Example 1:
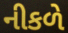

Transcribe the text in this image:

નીકળે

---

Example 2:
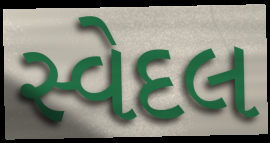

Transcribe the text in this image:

સ્વેદલ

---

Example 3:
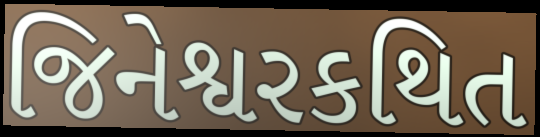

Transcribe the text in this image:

જિનેશ્વરકથિત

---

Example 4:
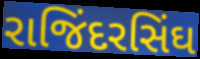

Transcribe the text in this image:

રાજિંદરસિંઘ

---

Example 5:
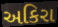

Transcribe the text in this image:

અકિરા